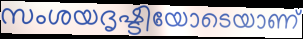
സംശയദൃഷ്ടിയോടെയാണ്